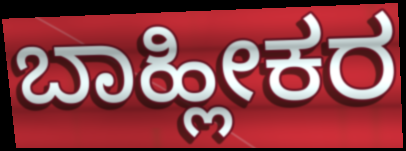
ಬಾಹ್ಲೀಕರ